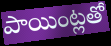
పాయింట్లతో